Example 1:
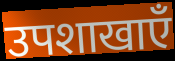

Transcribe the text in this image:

उपशाखाएँ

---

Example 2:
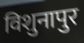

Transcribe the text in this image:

विशुनापुर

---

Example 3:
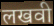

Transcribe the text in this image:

लखवी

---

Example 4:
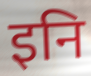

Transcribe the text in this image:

इनि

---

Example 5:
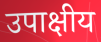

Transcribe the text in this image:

उपाक्षीय